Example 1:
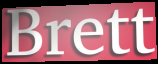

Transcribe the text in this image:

Brett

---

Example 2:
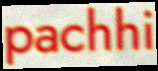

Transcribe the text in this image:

pachhi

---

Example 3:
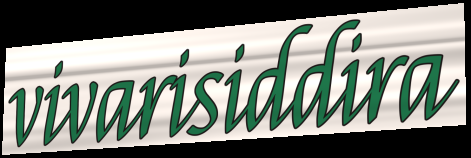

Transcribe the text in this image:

vivarisiddira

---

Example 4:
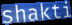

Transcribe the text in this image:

shakti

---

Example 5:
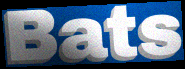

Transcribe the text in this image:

Bats